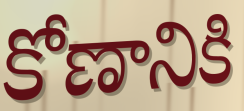
కోణానికి